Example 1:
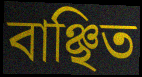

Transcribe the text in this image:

বাঞ্ছিত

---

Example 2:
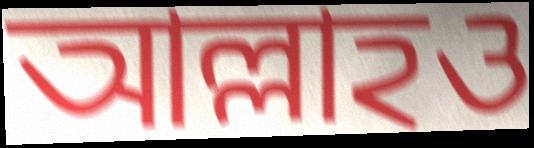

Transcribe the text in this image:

আল্লাহও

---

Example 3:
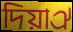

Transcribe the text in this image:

দিয়াঐ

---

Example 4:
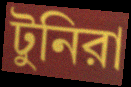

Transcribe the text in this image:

টুনিরা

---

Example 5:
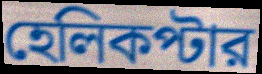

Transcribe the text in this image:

হেলিকপ্টার